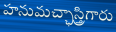
హనుమచ్ఛాస్త్రిగారు